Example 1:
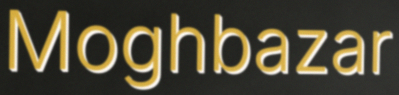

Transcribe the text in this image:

Moghbazar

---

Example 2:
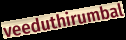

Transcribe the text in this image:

veeduthirumbal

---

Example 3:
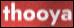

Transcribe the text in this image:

thooya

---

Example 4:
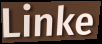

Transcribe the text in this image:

Linke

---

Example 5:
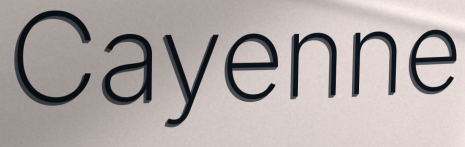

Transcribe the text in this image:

Cayenne